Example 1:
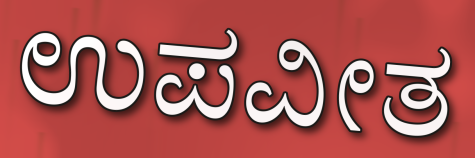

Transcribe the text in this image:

ಉಪವೀತ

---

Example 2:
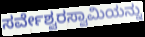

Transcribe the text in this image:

ಸರ್ವೇಶ್ವರಸ್ವಾಮಿಯನ್ನು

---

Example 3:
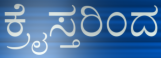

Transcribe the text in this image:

ಕ್ರೈಸ್ತರಿಂದ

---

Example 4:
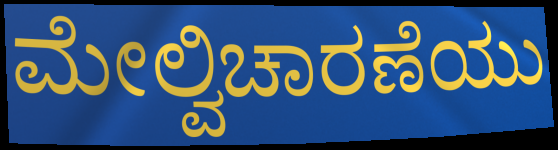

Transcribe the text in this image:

ಮೇಲ್ವಿಚಾರಣೆಯು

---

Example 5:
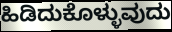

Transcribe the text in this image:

ಹಿಡಿದುಕೊಳ್ಳುವುದು